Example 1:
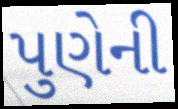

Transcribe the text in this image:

પુણેની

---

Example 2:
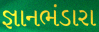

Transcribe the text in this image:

જ્ઞાનભંડારા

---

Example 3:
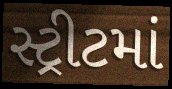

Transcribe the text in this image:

સ્ટ્રીટમાં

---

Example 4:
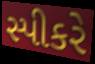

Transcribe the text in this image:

સ્પીકરે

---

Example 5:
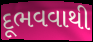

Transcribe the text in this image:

દૂભવવાથી